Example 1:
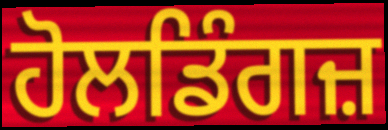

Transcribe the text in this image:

ਹੋਲਡਿੰਗਜ਼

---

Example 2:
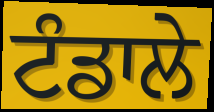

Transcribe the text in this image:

ਟੰਡਾਲੇ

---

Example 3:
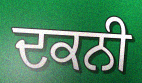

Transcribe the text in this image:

ਦਕਨੀ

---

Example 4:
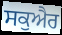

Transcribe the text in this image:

ਸਕੁਐਰ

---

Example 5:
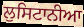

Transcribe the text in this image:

ਲੁਸਿਟਾਨੀਆ